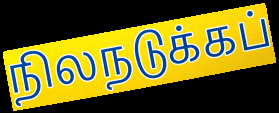
நிலநடுக்கப்